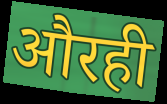
औरही